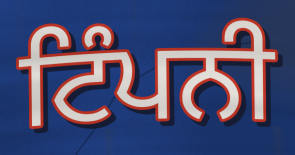
ਟਿੰਪਨੀ